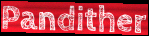
Pandither